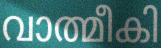
വാത്മീകി